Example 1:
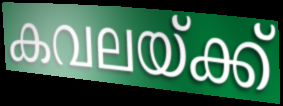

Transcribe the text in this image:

കവലയ്ക്ക്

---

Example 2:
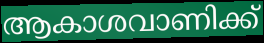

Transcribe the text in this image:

ആകാശവാണിക്ക്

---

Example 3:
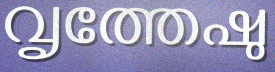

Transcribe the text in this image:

വൃത്തേഷു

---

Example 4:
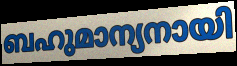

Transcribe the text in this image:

ബഹുമാന്യനായി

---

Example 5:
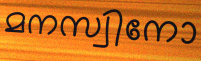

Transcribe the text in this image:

മനസ്വിനോ